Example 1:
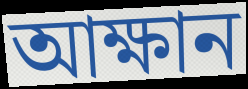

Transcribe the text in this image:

আক্ষান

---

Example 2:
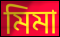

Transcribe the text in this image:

মিমা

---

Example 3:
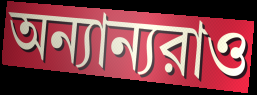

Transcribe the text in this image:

অন্যান্যরাও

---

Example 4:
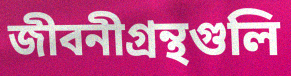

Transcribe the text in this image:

জীবনীগ্রন্থগুলি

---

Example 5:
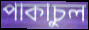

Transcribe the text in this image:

পাকাচুল